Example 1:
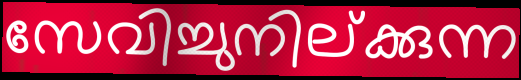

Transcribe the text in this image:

സേവിച്ചുനില്ക്കുന്ന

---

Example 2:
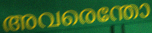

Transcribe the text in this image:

അവരെന്തോ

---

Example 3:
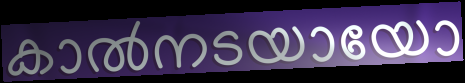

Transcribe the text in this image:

കാൽനടയായോ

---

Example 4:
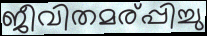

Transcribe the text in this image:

ജീവിതമര്പ്പിച്ചു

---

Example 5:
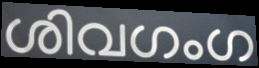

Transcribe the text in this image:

ശിവഗംഗ